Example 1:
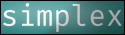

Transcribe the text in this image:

simplex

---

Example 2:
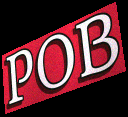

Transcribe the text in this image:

POB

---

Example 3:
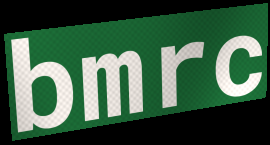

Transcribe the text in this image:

bmrc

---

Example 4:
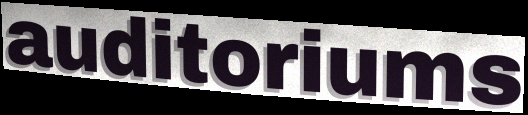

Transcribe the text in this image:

auditoriums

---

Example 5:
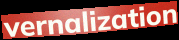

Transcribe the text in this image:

vernalization